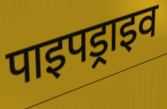
पाइपड्राइव